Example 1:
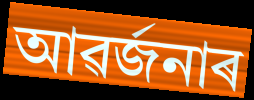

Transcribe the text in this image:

আৱৰ্জনাৰ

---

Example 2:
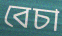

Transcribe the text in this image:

বেচা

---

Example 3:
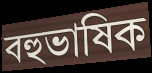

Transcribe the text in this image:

বহুভাষিক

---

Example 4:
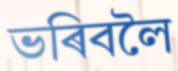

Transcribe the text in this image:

ভৰিবলৈ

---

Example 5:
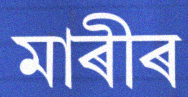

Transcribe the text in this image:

মাৰীৰ